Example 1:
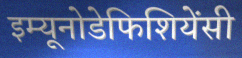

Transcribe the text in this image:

इम्यूनोडेफिशियेंसी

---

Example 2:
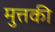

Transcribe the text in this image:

मुत्तकी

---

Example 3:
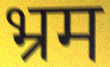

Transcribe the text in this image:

भ्रम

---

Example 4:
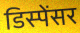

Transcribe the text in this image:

डिस्पेंसर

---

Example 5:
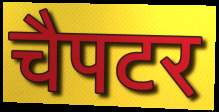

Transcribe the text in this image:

चैपटर